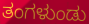
ತಂಗಳುಂಡು